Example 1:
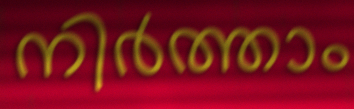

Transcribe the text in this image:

നിർത്താം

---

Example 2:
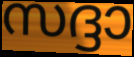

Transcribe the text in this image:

സദ്ദാ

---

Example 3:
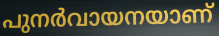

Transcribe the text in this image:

പുനർവായനയാണ്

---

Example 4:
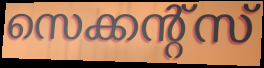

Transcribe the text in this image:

സെക്കന്റ്സ്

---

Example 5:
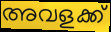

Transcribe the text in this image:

അവളക്ക്